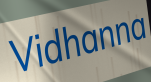
Vidhanna